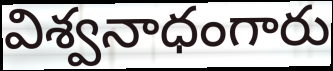
విశ్వనాధంగారు